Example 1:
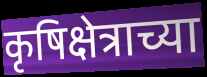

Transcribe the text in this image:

कृषिक्षेत्राच्या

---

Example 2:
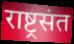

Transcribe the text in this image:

राष्ट्रसंत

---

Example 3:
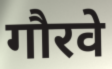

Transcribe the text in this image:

गौरवे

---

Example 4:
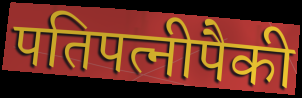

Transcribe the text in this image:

पतिपत्नीपैकी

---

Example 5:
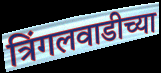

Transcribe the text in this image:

त्रिंगलवाडीच्या